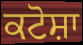
ਕਟੋਸ਼ਾ